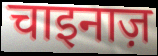
चाइनाज़